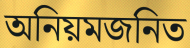
অনিয়মজনিত